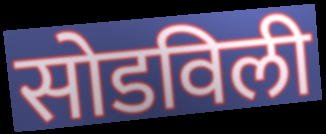
सोडविली